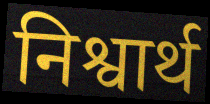
निश्वार्थ